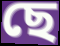
ছে